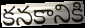
కనకానికి